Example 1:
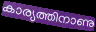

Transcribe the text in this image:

കാര്യത്തിനാണു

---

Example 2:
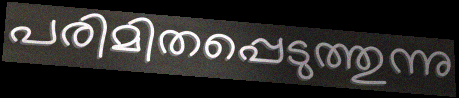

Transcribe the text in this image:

പരിമിതപ്പെടുത്തുന്നു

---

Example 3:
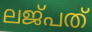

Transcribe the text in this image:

ലജ്പത്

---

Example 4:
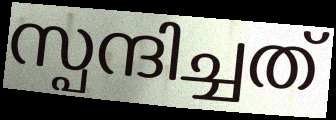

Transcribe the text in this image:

സ്പന്ദിച്ചത്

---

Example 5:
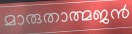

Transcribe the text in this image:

മാരുതാത്മജൻ